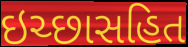
ઇચ્છાસહિત